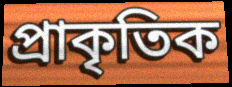
প্রাকৃতিক